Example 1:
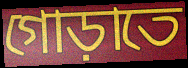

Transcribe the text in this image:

গোড়াতে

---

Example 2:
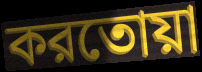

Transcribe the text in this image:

করতোয়া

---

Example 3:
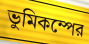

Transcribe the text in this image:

ভুমিকম্পের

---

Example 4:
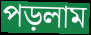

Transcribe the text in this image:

পড়লাম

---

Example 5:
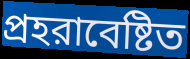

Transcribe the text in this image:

প্রহরাবেষ্টিত